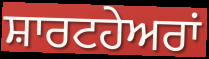
ਸ਼ਾਰਟਹੇਅਰਾਂ